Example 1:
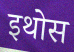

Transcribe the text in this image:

इथोस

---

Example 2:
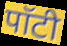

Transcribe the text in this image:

पॉटी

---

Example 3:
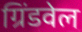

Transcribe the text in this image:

ग्रिंडवेल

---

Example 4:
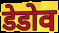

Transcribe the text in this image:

डेडोव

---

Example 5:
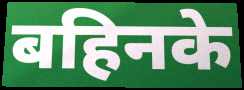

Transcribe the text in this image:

बहिनके